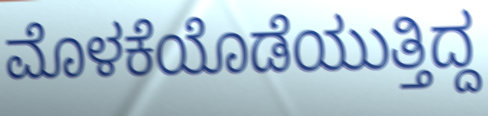
ಮೊಳಕೆಯೊಡೆಯುತ್ತಿದ್ದ